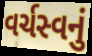
વર્ચસ્વનું